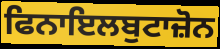
ਫਿਨਾਇਲਬੁਟਾਜ਼ੋਨ